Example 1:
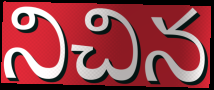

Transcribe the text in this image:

నిచిన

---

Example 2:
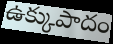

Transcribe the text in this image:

ఉక్కుపాదం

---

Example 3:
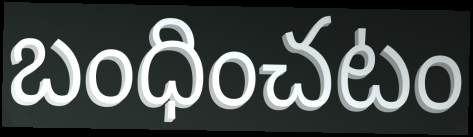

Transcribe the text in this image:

బంధించటం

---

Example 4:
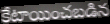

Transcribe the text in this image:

కేటాయించబడిన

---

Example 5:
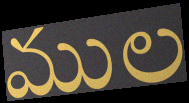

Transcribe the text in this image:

ముల